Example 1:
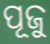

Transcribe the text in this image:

ପୂଜୁ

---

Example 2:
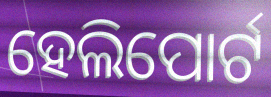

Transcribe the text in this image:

ହେଲିପୋର୍ଟ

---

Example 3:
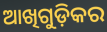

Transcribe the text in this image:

ଆଖିଗୁଡ଼ିକର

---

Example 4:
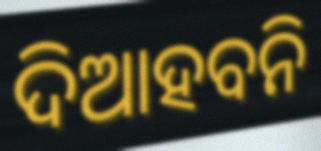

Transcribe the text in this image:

ଦିଆହବନି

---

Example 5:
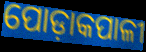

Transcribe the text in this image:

ପୋଡ଼ାକପାଳୀ